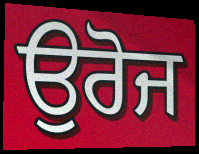
ਉਰੋਜ